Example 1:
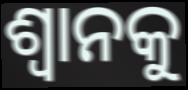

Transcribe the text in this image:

ଶ୍ଵାନକୁ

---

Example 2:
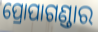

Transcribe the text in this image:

ପ୍ରୋପାଗଣ୍ଡାର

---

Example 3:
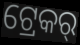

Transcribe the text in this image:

ଟ୍ରେକର୍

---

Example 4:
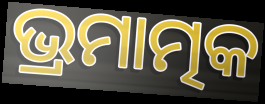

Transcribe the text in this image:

ଭ୍ରମାତ୍ମକ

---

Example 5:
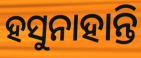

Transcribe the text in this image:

ହସୁନାହାନ୍ତି